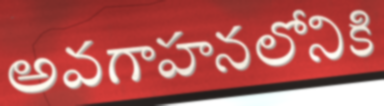
అవగాహనలోనికి